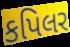
કપિલર